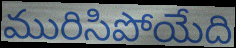
మురిసిపోయేది